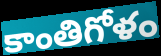
కాంతిగోళం